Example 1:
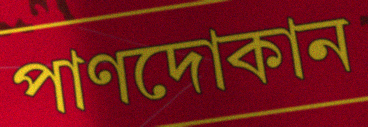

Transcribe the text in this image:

পাণদোকান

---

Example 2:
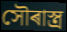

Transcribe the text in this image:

সৌৰাস্ত্ৰ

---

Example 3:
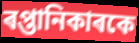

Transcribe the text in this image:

ৰপ্তানিকাৰকে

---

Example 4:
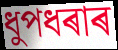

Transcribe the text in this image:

ধুপধৰাৰ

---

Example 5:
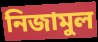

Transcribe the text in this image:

নিজামুল